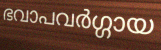
ഭവാപവർഗ്ഗായ